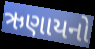
ઋણાયનો